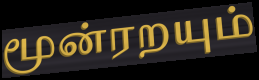
மூன்ரறயும்